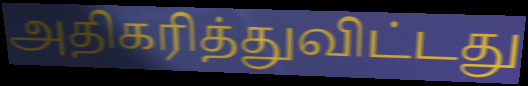
அதிகரித்துவிட்டது